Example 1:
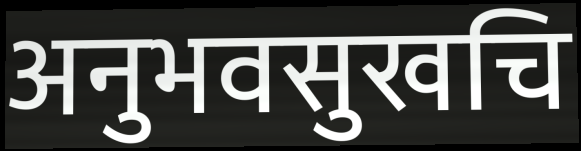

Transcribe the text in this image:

अनुभवसुखचि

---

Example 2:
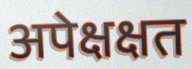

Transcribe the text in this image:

अपेक्षक्षत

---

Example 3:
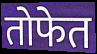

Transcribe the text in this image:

तोफेत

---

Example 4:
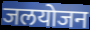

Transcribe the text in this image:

जलयोजन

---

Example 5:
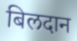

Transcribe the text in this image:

बिलदान